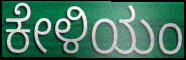
ಕೇಳಿಯಂ